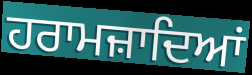
ਹਰਾਮਜ਼ਾਦਿਆਂ